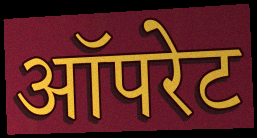
ऑपरेट